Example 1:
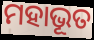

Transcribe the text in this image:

ମହାଭୂତ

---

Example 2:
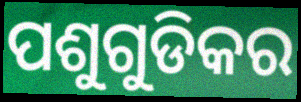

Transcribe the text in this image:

ପଶୁଗୁଡିକର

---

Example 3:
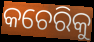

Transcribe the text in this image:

କଚେରିକୁ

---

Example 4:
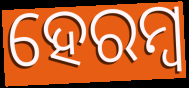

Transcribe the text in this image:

ହେରମ୍ୱ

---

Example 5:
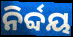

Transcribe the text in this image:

ନିର୍ବ୍ଦୟ